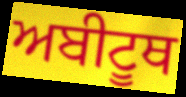
ਅਬੀਟੂਥ